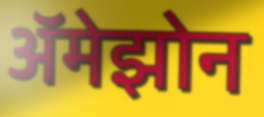
ॲमेझोन